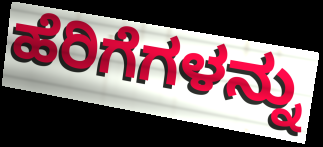
ಹೆರಿಗೆಗಳನ್ನು